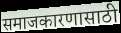
समाजकारणासाठी